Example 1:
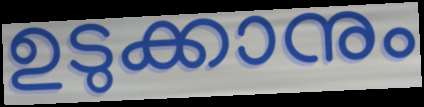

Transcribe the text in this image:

ഉടുക്കാനും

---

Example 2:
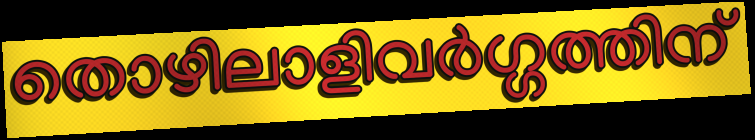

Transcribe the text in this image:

തൊഴിലാളിവർഗ്ഗത്തിന്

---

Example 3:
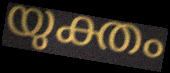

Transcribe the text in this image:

യുക്തം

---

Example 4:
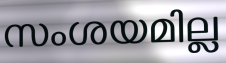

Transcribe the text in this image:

സംശയമില്ല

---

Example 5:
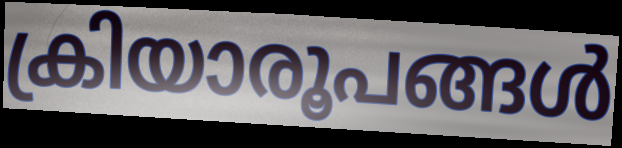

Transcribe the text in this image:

ക്രിയാരൂപങ്ങൾ